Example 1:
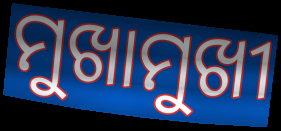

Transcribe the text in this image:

ମୁଖାମୁଖୀ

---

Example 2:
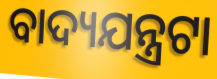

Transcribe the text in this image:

ବାଦ୍ୟଯନ୍ତ୍ରଟା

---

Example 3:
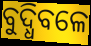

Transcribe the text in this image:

ବୁଦ୍ଧିବଳେ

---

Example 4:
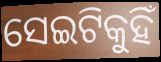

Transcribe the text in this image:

ସେଇଟିକୁହିଁ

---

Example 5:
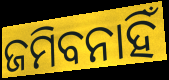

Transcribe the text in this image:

ଜମିବନାହିଁ